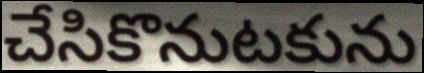
చేసికొనుటకును